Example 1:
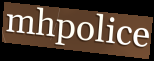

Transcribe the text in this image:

mhpolice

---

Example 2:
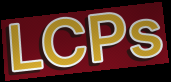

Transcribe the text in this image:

LCPs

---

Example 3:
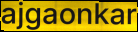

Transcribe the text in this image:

ajgaonkar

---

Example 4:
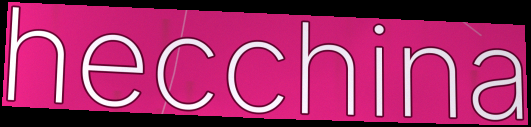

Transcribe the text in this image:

hecchina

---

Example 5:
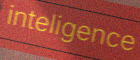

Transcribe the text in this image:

inteligence